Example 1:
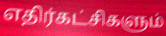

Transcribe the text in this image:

எதிர்கட்சிகளும்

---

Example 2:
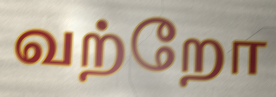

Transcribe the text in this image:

வற்றோ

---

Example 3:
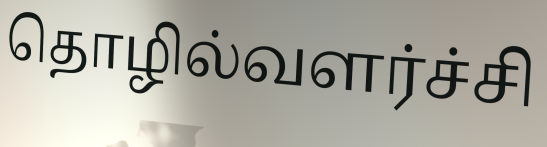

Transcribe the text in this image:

தொழில்வளர்ச்சி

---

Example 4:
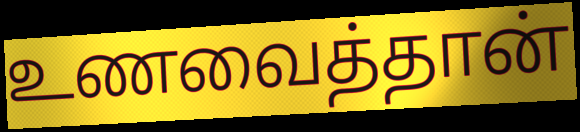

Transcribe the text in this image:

உணவைத்தான்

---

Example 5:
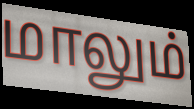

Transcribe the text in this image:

மாலும்